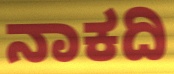
ನಾಕದಿ